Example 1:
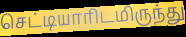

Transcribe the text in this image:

செட்டியாரிடமிருந்து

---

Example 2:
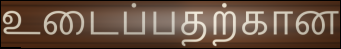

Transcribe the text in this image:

உடைப்பதற்கான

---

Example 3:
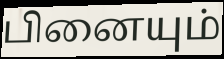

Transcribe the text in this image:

பினையும்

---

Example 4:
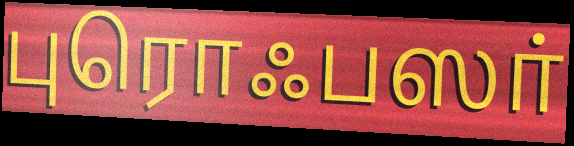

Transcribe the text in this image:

புரொஃபஸர்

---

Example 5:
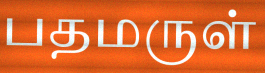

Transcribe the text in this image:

பதமருள்